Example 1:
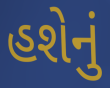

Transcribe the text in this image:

હશેનું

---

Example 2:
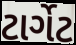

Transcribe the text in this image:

ટાર્ગેટ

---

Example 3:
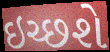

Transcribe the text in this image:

ઇચ્છશે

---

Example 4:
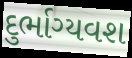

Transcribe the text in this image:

દુર્ભાગ્યવશ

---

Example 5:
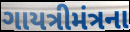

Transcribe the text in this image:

ગાયત્રીમંત્રના